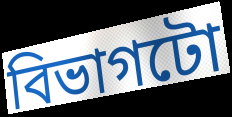
বিভাগটো